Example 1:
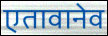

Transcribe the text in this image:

एतावानेव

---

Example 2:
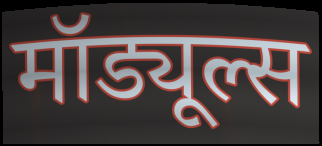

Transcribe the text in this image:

मॉड्यूल्स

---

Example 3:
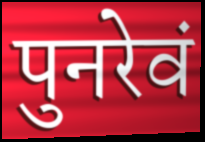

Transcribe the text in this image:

पुनरेवं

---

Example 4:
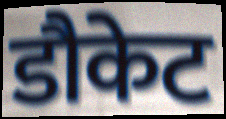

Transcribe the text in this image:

डौकेट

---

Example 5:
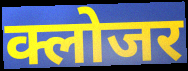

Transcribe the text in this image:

क्लोजर